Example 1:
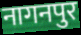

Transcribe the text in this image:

नागनपुर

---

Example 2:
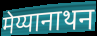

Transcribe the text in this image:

मेय्यानाथन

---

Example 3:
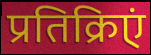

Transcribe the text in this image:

प्रतिक्रिएं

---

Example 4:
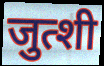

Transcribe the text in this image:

जुत्शी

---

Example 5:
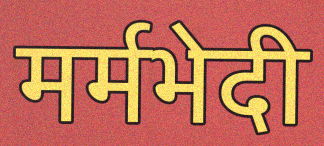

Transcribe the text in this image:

मर्मभेदी